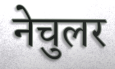
नेचुलर